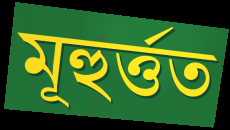
মূহুৰ্ত্তত